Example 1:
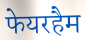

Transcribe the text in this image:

फेयरहैम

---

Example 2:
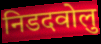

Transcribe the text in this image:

निडदवोलु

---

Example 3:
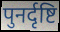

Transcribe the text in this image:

पुनर्दृष्टि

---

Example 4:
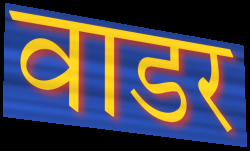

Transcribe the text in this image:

वाडर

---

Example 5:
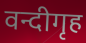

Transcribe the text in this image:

वन्दीगृह